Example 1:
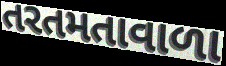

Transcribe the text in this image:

તરતમતાવાળા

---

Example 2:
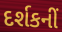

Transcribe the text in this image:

દર્શકનીં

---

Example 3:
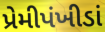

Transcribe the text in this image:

પ્રેમીપંખીડાં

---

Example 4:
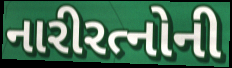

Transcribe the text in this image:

નારીરત્નોની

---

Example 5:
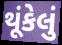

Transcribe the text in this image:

થૂંકેલું